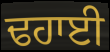
ਢਹਾਈ